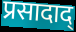
प्रसादाद्